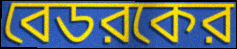
বেডরকের